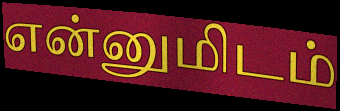
என்னுமிடம்